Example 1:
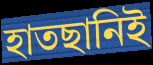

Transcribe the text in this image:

হাতছানিই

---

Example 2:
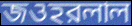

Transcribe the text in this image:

জওহরলাল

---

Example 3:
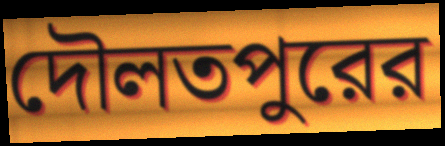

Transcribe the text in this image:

দৌলতপুরের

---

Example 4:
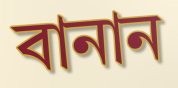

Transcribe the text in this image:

বানান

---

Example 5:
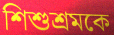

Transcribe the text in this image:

শিশুশ্রমকে